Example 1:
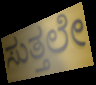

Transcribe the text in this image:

ಸುತ್ತಲೇ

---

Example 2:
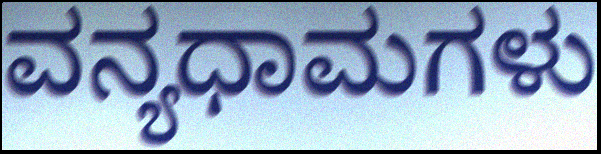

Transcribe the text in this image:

ವನ್ಯಧಾಮಗಳು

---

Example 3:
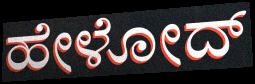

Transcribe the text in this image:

ಹೇಳೋದ್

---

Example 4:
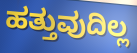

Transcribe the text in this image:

ಹತ್ತುವುದಿಲ್ಲ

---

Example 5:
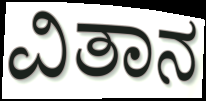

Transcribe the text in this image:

ವಿತಾನ